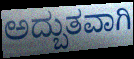
ಅದ್ಬುತವಾಗಿ